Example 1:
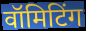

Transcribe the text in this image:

वॉमिटिंग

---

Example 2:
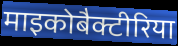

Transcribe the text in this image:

माइकोबैक्टीरिया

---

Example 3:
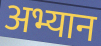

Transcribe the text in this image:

अभ्यान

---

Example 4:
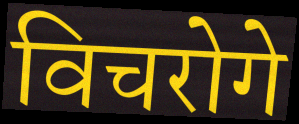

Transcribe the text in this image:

विचरोगे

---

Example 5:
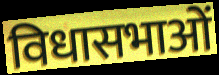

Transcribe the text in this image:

विधासभाओं